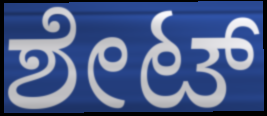
ಶೇಟ್